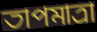
তাপমাত্ৰা